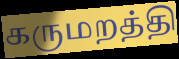
கருமறத்தி